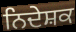
ਨਿਦੇਸ਼ਕ